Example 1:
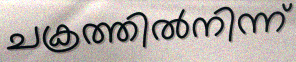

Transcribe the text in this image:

ചക്രത്തിൽനിന്ന്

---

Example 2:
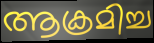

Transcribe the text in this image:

ആക്രമിച്ച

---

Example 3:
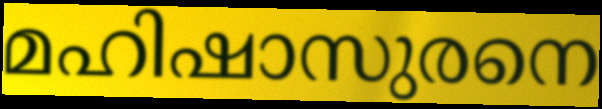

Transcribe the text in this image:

മഹിഷാസുരനെ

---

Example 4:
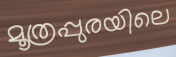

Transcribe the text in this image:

മൂത്രപ്പുരയിലെ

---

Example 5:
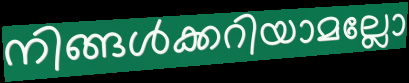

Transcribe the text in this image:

നിങ്ങൾക്കറിയാമല്ലോ